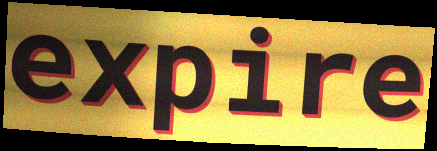
expire